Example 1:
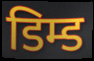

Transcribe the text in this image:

डिम्ड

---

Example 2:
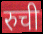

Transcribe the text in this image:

रुची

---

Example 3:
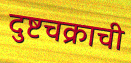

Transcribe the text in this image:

दुष्टचक्राची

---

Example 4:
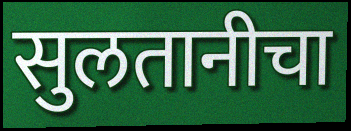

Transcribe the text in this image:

सुलतानीचा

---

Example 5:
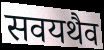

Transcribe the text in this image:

सवयथैव